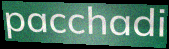
pacchadi